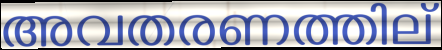
അവതരണത്തില്